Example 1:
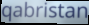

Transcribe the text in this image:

qabristan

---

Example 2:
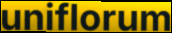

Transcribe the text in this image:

uniflorum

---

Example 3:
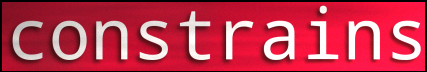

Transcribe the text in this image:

constrains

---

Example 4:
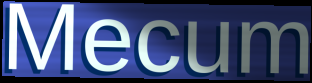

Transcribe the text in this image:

Mecum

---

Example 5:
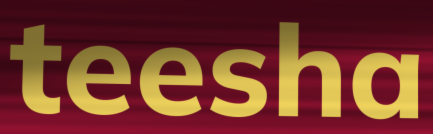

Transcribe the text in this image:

teesha